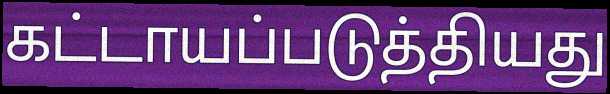
கட்டாயப்படுத்தியது